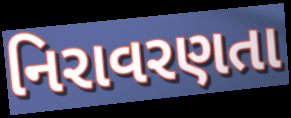
નિરાવરણતા